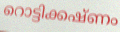
റൊട്ടിക്കഷ്ണം